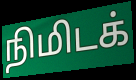
நிமிடக்